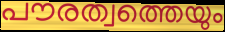
പൗരത്വത്തെയും